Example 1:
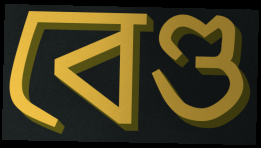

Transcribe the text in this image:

বেণ্ড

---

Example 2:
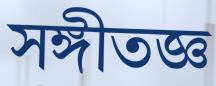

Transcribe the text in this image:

সঙ্গীতজ্ঞ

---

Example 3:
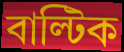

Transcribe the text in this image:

বাল্টিক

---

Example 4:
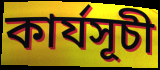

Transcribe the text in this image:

কাৰ্যসূচী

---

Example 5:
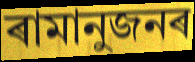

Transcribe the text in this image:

ৰামানুজনৰ